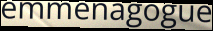
emmenagogue